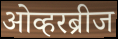
ओव्हरब्रीज